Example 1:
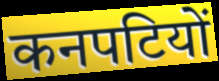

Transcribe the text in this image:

कनपटियों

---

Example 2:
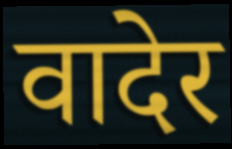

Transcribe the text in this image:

वादेर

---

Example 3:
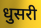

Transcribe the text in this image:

धुसरी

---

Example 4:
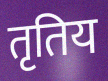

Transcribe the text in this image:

तृतिय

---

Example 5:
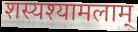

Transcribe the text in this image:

शस्यश्यामलाम्